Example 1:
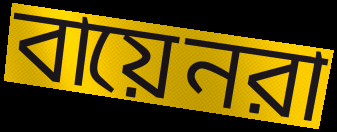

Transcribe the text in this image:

বায়েনরা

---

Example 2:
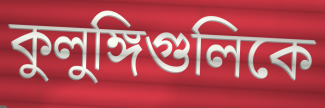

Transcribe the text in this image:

কুলুঙ্গিগুলিকে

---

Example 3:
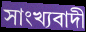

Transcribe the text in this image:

সাংখ্যবাদী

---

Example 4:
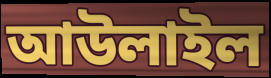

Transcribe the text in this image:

আউলাইল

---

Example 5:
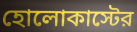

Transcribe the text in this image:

হোলোকাস্টের